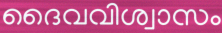
ദൈവവിശ്വാസം